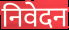
निवेदन